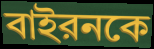
বাইরনকে